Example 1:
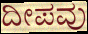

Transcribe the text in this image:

ದೀಪವು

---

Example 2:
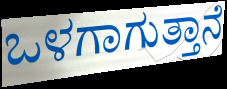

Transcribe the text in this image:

ಒಳಗಾಗುತ್ತಾನೆ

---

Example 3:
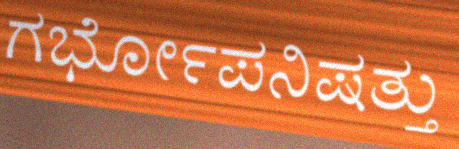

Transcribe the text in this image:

ಗರ್ಭೋಪನಿಷತ್ತು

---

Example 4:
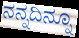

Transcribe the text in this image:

ನನ್ನದಿನ್ನೂ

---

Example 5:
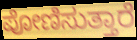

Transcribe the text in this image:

ಪೋಣಿಸುತ್ತಾರೆ